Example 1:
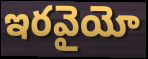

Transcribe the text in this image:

ఇరవైయో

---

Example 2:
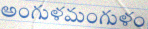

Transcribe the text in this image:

అంగుళమంగుళం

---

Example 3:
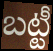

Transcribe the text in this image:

బట్టీ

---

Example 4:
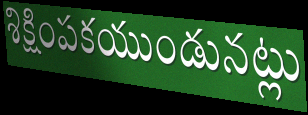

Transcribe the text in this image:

శిక్షింపకయుండునట్లు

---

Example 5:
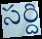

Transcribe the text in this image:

సర్ది